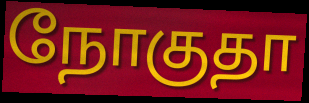
நோகுதா